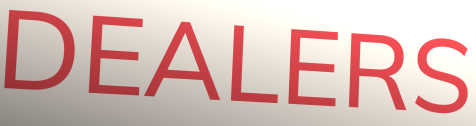
DEALERS